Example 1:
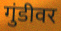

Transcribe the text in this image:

गुंडीवर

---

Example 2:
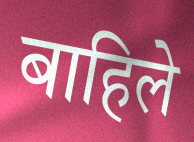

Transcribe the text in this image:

बाहिले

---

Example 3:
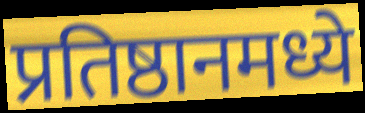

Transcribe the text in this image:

प्रतिष्ठानमध्ये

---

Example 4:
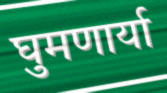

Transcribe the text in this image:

घुमणार्या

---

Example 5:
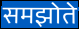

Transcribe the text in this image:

समझोते